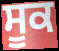
ਸੂਕ